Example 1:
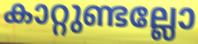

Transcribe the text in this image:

കാറ്റുണ്ടല്ലോ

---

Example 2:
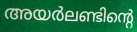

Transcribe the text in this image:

അയർലണ്ടിന്റെ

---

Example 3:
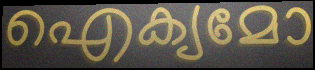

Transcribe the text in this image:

ഐക്യമോ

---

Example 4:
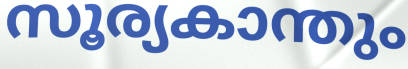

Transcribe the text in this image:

സൂര്യകാന്തും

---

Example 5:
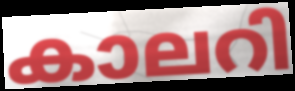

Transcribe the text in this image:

കാലറി